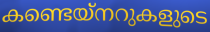
കണ്ടെയ്നറുകളുടെ